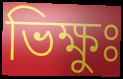
ভিক্ষুঃ